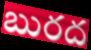
బురద